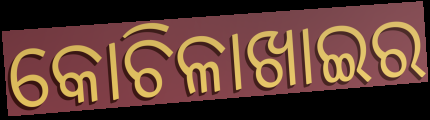
କୋଚିଳାଖାଇର